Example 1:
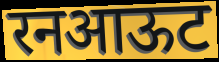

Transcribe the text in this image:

रनआऊट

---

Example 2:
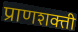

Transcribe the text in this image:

प्राणशक्ती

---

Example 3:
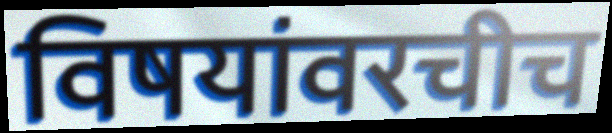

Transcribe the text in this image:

विषयांवरचीच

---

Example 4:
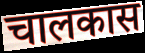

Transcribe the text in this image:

चालकास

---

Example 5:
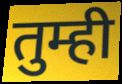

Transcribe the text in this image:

तुम्ही